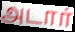
அடார்